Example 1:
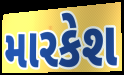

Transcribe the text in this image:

મારકેશ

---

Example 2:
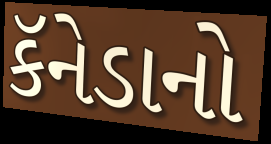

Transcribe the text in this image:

કૅનેડાનો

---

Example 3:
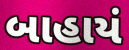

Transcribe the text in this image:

બાહાયં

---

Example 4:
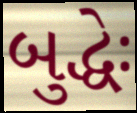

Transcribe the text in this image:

બુદ્ધેઃ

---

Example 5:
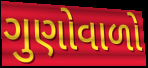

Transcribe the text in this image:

ગુણોવાળો